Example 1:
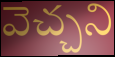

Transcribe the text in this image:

వెచ్చని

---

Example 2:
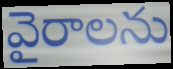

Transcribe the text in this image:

వైరాలను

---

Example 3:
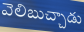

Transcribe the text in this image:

వెలిబుచ్చాడు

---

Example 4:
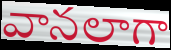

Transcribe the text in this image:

వానలాగా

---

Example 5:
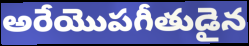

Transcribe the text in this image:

అరేయొపగీతుడైన